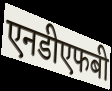
एनडीएफबी